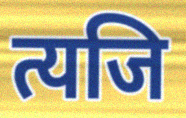
त्यजि